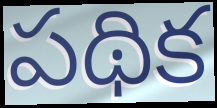
పథిక